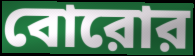
বোরোর